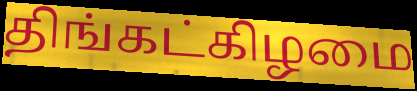
திங்கட்கிழமை